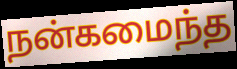
நன்கமைந்த